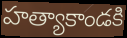
హత్యాకాండకి